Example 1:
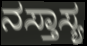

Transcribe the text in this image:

ನಸ್ತಾಸ್ಯ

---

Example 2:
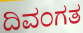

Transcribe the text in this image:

ದಿವಂಗತ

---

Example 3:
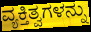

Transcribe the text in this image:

ವ್ಯಕ್ತಿತ್ವಗಳನ್ನು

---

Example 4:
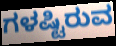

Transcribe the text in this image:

ಗಳಷ್ಟಿರುವ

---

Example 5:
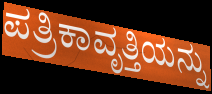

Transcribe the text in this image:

ಪತ್ರಿಕಾವೃತ್ತಿಯನ್ನು